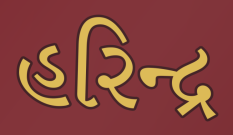
હરિન્દ્ર